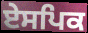
ਏਸਪਿਕ